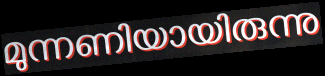
മുന്നണിയായിരുന്നു